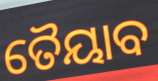
ତୈୟାବ